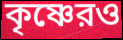
কৃষ্ণেরও